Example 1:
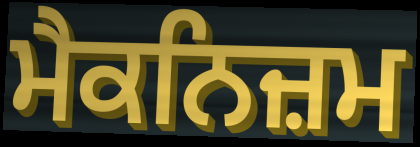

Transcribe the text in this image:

ਮੈਕਨਿਜ਼ਮ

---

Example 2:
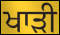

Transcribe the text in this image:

ਖਾੜੀ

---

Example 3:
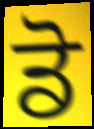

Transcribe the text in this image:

ਡੋ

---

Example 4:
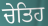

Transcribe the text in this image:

ਚੇਤਿਹ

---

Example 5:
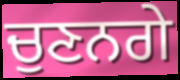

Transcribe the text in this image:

ਚੁਣਨਗੇ